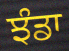
ਝੰਡਾ